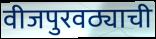
वीजपुरवठ्याची